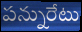
పన్నురేటు